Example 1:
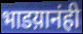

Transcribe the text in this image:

भाडय़ानंही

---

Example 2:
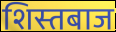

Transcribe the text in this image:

शिस्तबाज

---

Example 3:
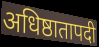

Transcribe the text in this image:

अधिष्ठातापदी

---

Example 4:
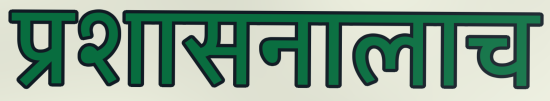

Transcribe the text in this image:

प्रशासनालाच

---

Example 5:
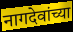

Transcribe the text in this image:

नागदेवांच्या